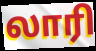
லாரி